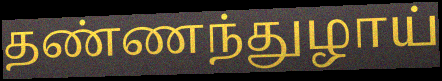
தண்ணந்துழாய்